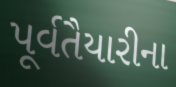
પૂર્વતૈયારીના